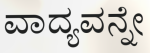
ವಾದ್ಯವನ್ನೇ